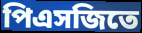
পিএসজিতে